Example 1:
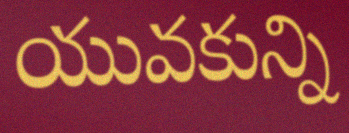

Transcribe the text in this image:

యువకున్ని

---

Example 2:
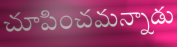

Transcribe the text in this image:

చూపించమన్నాడు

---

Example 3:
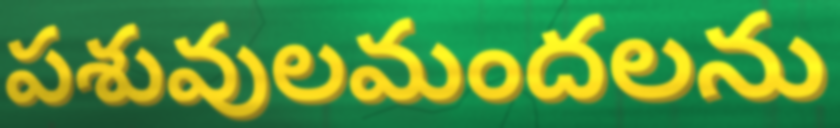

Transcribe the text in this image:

పశువులమందలను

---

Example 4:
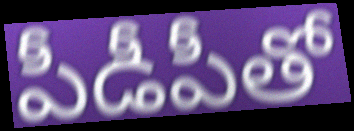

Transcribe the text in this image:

పీడీపీతో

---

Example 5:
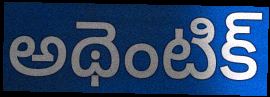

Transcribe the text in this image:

అథెంటిక్